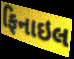
ફિનાઇલ